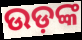
ଉଡ଼ଙ୍କ